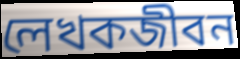
লেখকজীবন